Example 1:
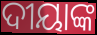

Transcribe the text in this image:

ଦୀୟାଙ୍କ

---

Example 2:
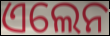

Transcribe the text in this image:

ଏଲେନ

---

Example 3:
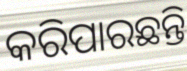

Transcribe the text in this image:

କରିପାରଛନ୍ତି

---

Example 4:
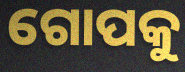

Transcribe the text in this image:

ଗୋପକୁ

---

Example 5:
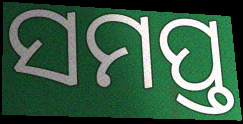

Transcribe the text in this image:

ସମପ୍ତ